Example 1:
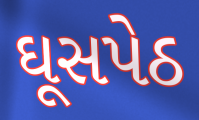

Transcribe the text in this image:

ઘૂસપેઠ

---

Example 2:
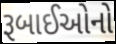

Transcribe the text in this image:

રૂબાઈઓનો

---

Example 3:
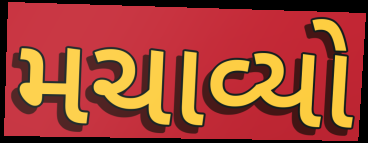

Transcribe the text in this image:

મચાવ્યો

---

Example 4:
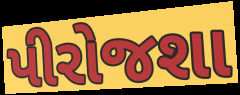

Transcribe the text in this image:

પીરોજશા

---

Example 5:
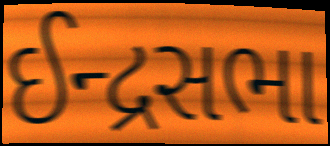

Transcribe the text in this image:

ઈન્દ્રસભા